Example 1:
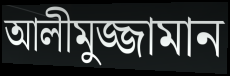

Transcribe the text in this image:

আলীমুজ্জামান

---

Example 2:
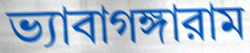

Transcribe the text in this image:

ভ্যাবাগঙ্গারাম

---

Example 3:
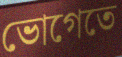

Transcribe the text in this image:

ভোগেতে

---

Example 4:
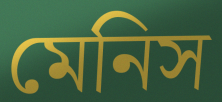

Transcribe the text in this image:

মেনিস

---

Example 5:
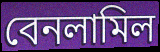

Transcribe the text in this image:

বেনলামিল